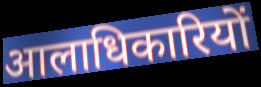
आलाधिकारियों